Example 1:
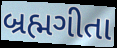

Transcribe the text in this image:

બ્રહ્મગીતા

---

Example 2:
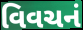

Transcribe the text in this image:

વિવચનં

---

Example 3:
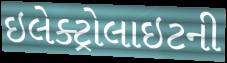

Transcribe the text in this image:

ઇલેક્ટ્રોલાઇટની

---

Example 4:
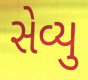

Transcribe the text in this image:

સેવ્યુ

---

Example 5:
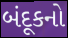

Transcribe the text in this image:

બંદૂકનો